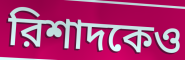
রিশাদকেও